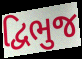
દ્વિભુજ